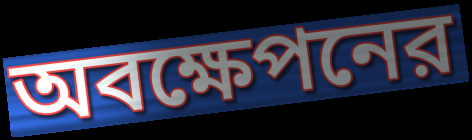
অবক্ষেপনের